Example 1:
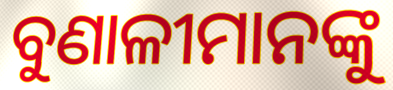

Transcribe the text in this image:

ବୁଣାଳୀମାନଙ୍କୁ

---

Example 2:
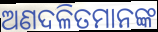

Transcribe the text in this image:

ଅଣଦଳିତମାନଙ୍କ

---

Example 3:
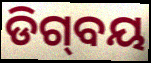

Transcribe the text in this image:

ଡିଗ୍‌ବୟ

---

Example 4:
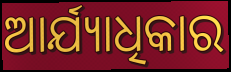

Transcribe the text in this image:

ଆର୍ଯ୍ୟାଧିକାର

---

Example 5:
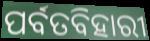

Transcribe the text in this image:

ପର୍ବତବିହାରୀ